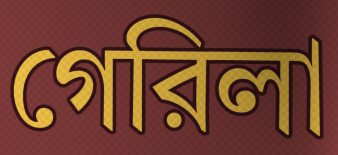
গেরিলা